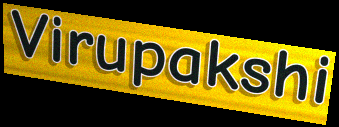
Virupakshi